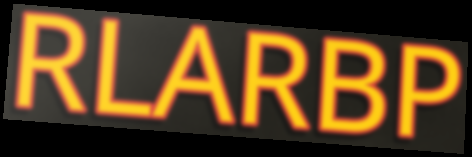
RLARBP